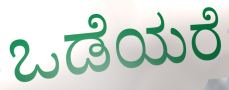
ಒಡೆಯರೆ